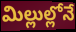
మిల్లుల్లోనే